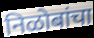
निळोबांचा